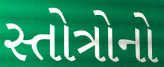
સ્તોત્રોનો